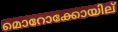
മൊറോക്കോയില്